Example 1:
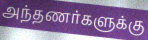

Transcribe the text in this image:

அந்தணர்களுக்கு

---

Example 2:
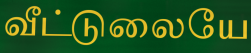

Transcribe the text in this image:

வீட்டுலையே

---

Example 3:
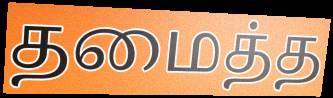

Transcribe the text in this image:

தமைத்த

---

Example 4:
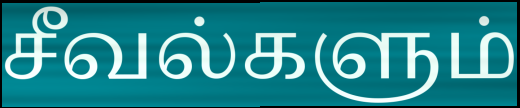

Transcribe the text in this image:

சீவல்களும்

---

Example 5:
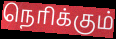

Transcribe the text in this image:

நெரிக்கும்